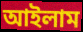
আইলাম